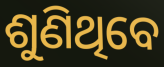
ଶୁଣିଥିବେ